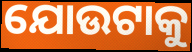
ଯୋଉଟାକୁ